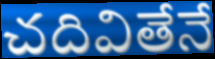
చదివితేనే